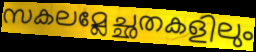
സകലമ്ലേച്ഛതകളിലും